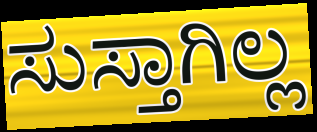
ಸುಸ್ತಾಗಿಲ್ಲ